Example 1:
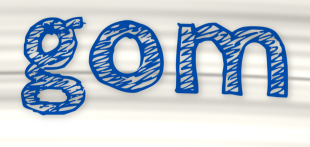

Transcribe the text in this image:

gom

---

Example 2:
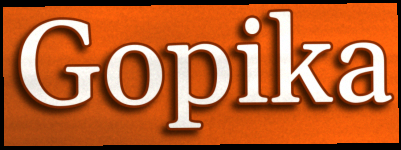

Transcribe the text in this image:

Gopika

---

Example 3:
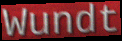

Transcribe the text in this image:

Wundt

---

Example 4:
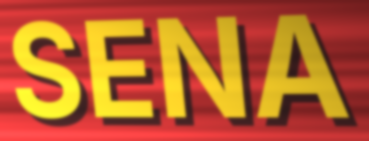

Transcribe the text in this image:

SENA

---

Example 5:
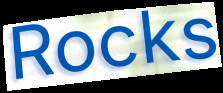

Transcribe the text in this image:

Rocks